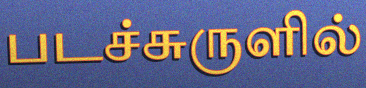
படச்சுருளில்